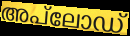
അപ്‌ലോഡ്